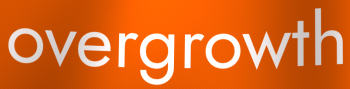
overgrowth